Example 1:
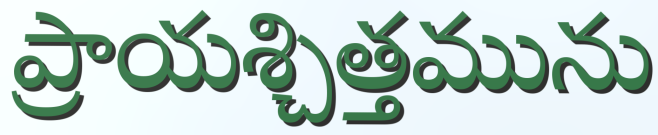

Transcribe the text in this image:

ప్రాయశ్చిత్తమును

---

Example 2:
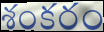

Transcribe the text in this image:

శంకరం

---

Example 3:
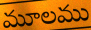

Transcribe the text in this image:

మూలము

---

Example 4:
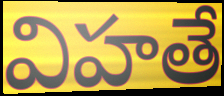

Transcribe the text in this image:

విహతే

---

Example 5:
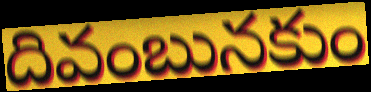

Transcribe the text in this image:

దివంబునకుం